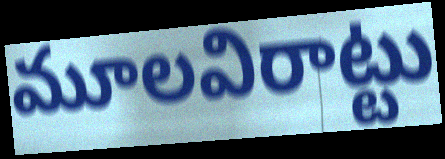
మూలవిరాట్టు